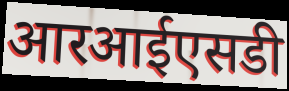
आरआईएसडी